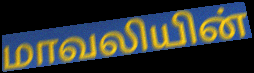
மாவலியின்